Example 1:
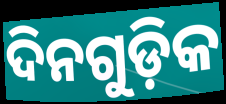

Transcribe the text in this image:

ଦିନଗୁଡ଼ିକ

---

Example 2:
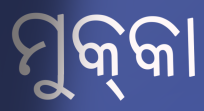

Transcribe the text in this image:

ମୁକ୍‌କା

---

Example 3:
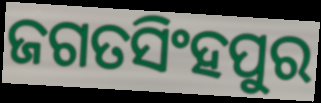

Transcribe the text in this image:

ଜଗତସିଂହପୁର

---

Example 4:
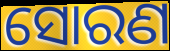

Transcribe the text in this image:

ସୋରଣ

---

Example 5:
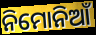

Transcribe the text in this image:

ନିମୋନିଆଁ